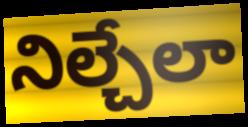
నిల్చేలా